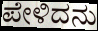
ಪೇಳಿದನು